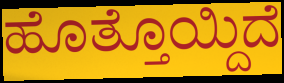
ಹೊತ್ತೊಯ್ದಿದೆ